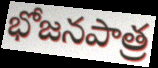
భోజనపాత్ర